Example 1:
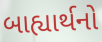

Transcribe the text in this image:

બાહ્યાર્થનો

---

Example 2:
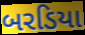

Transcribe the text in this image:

બરડિયા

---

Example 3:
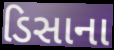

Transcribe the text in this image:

ડિસાના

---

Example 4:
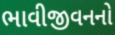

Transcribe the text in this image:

ભાવીજીવનનો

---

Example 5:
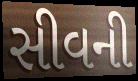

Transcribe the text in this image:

સીવની